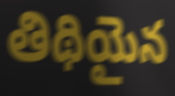
తిథియైన